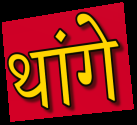
थांगे